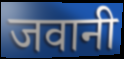
जवानी